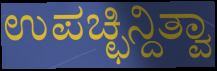
ಉಪಚ್ಛಿನ್ದಿತ್ವಾ